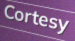
Cortesy